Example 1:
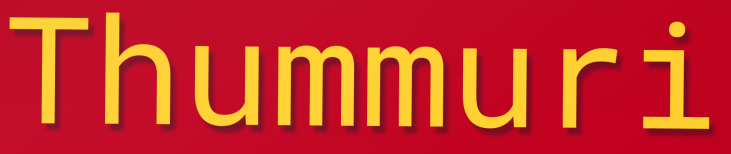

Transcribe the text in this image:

Thummuri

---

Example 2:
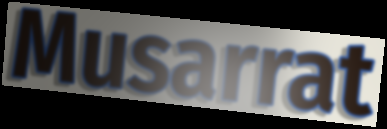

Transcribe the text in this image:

Musarrat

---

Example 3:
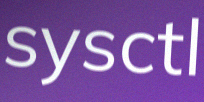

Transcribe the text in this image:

sysctl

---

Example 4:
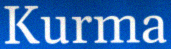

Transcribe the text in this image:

Kurma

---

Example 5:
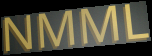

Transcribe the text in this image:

NMML